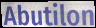
Abutilon